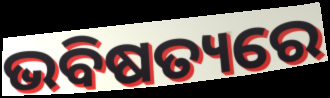
ଭବିଷତ୍ୟରେ